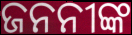
ଜନନୀଙ୍କ